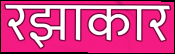
रझाकार